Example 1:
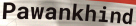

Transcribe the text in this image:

Pawankhind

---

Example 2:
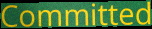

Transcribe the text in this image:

Committed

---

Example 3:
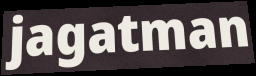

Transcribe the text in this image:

jagatman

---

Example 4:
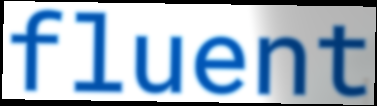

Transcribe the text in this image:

fluent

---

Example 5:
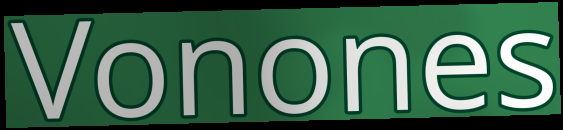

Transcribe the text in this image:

Vonones